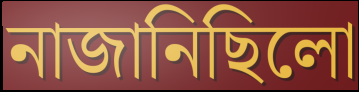
নাজানিছিলো